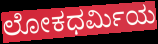
ಲೋಕಧರ್ಮಿಯ